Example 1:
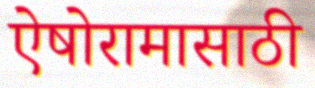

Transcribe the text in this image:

ऐषोरामासाठी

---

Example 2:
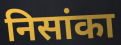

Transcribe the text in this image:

निसांका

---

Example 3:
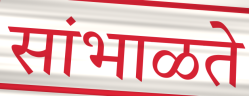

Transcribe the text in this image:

सांभाळते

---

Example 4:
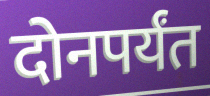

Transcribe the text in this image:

दोनपर्यंत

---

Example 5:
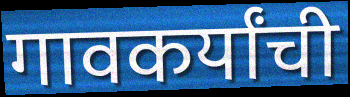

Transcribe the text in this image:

गावकर्यांची